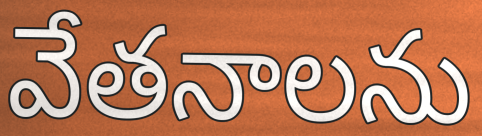
వేతనాలను